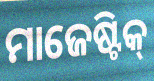
ମାଜେଷ୍ଟିକ୍